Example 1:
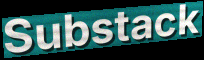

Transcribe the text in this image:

Substack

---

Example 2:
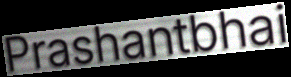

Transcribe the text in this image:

Prashantbhai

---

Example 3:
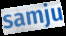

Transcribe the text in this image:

samju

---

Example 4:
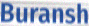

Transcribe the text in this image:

Buransh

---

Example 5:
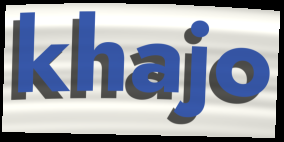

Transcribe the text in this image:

khajo